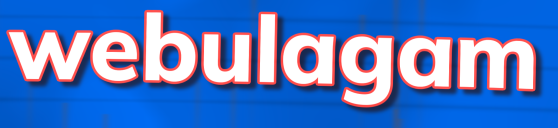
webulagam